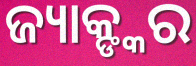
ଜ୍ୟାକ୍ଙ୍କର